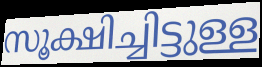
സൂക്ഷിച്ചിട്ടുള്ള